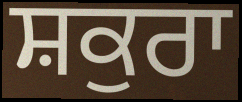
ਸ਼ਕੁਰਾ